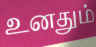
உனதும்